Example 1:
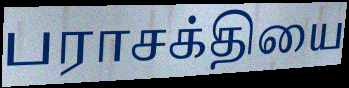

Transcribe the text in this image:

பராசக்தியை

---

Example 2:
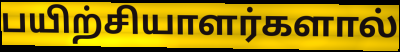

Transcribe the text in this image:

பயிற்சியாளர்களால்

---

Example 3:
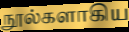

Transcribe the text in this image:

நூல்களாகிய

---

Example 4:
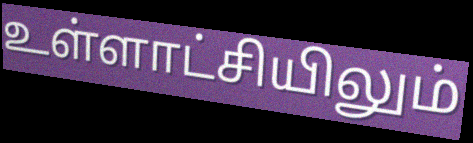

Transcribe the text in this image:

உள்ளாட்சியிலும்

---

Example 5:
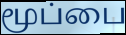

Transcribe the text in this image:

மூப்பை